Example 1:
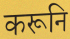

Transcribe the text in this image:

करूनि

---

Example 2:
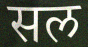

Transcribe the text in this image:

सल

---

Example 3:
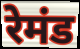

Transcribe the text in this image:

रेमंड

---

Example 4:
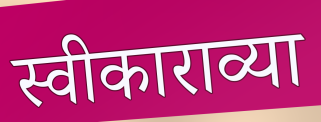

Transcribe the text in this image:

स्वीकाराव्या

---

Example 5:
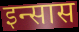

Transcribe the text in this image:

इन्सास